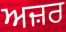
ਅਜ਼ਰ